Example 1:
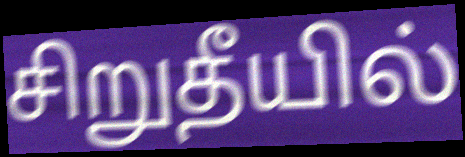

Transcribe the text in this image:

சிறுதீயில்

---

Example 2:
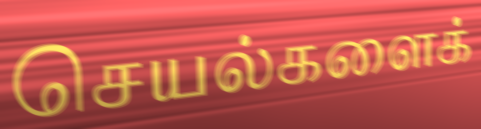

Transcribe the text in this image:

செயல்களைக்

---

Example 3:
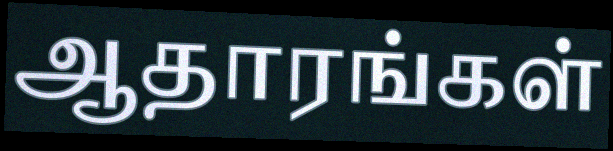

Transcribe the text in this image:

ஆதாரங்கள்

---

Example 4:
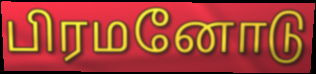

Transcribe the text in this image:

பிரமனோடு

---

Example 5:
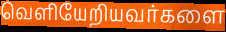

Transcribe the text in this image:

வெளியேறியவர்களை